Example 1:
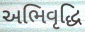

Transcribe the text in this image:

અભિવૃદ્ધિ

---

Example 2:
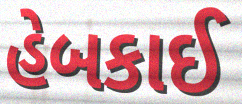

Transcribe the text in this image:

હેબકાઈ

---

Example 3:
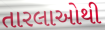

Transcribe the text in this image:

તારલાઓથી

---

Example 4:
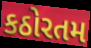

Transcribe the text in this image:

કઠોરતમ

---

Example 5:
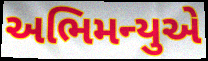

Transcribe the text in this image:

અભિમન્યુએ